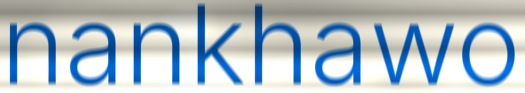
nankhawo